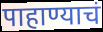
पाहाण्याचं